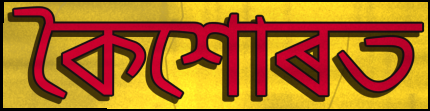
কৈশোৰত